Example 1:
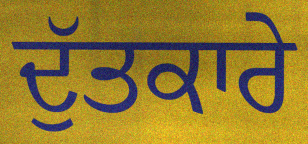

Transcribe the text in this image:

ਦੁੱਤਕਾਰੇ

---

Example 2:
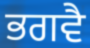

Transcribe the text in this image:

ਭਗਵੈ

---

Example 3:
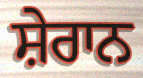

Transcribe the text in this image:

ਸ਼ੇਰਾਨ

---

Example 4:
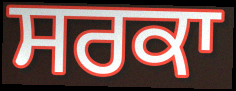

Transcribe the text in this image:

ਸਰਕਾ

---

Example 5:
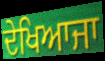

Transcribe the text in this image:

ਦੇਖਿਆਜਾ